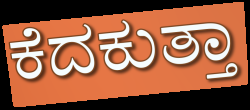
ಕೆದಕುತ್ತಾ